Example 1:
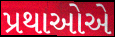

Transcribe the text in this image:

પ્રથાઓએ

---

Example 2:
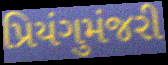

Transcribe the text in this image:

પ્રિયંગુમંજરી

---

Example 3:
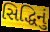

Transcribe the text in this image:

સિદ્ધિનું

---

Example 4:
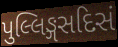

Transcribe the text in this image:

પુલ્લિઙ્ગસદિસં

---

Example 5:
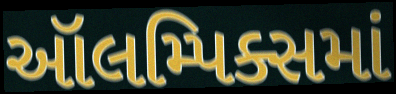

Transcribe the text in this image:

ઑલમ્પિક્સમાં